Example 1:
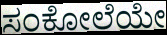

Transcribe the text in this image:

ಸಂಕೋಲೆಯೇ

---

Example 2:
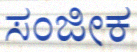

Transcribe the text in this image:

ಸಂಜೀಕ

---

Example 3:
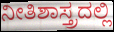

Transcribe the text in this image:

ನೀತಿಶಾಸ್ತ್ರದಲ್ಲಿ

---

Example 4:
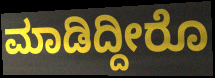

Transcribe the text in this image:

ಮಾಡಿದ್ದೀರೊ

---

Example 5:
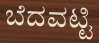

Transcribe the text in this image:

ಬೆದವಟ್ಟಿ